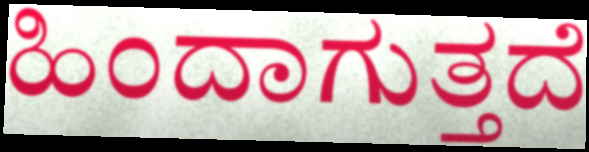
ಹಿಂದಾಗುತ್ತದೆ